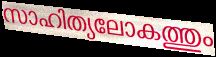
സാഹിത്യലോകത്തും